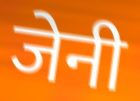
जेनी